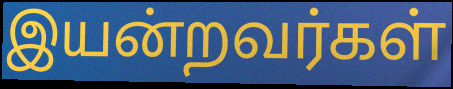
இயன்றவர்கள்